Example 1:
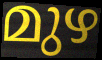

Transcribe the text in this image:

മുഴ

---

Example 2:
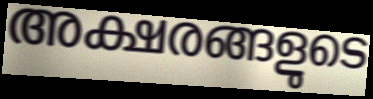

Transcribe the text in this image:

അക്ഷരങ്ങളുടെ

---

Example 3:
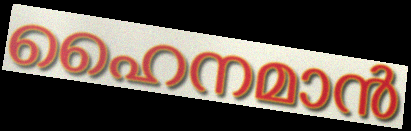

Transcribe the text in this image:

ഹൈനമാൻ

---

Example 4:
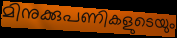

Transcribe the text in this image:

മിനുക്കുപണികളുടെയും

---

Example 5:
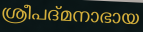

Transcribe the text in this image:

ശ്രീപദ്മനാഭായ